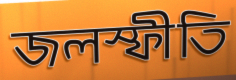
জলস্ফীতি